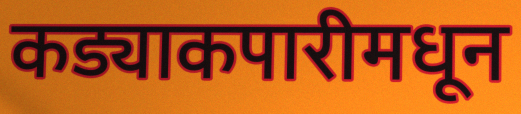
कड्याकपारीमधून